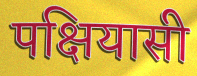
पक्षियासी